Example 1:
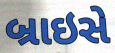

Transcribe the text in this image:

બ્રાઇસે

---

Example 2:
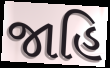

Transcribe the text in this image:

જાહિ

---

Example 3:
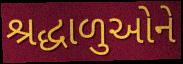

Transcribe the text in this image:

શ્રદ્ધાળુઓને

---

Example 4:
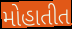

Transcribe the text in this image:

મોહાતીત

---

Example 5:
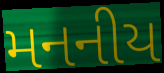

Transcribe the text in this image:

મનનીય